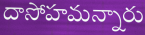
దాసోహమన్నారు